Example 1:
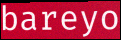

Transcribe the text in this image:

bareyo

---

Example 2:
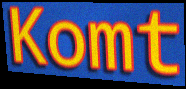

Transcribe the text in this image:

Komt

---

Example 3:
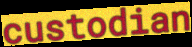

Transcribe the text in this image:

custodian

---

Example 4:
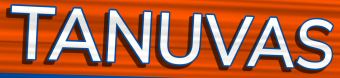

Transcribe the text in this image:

TANUVAS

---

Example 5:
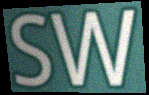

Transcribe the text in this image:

SW